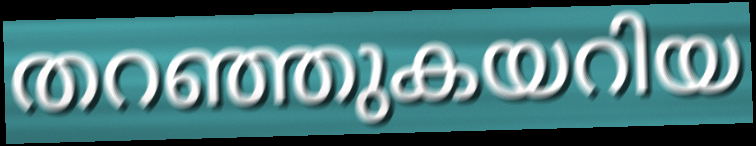
തറഞ്ഞുകയറിയ